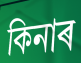
কিনাৰ